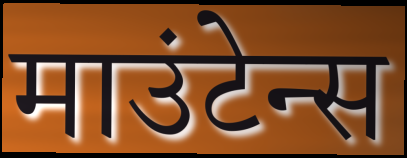
माउंटेन्स